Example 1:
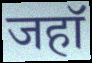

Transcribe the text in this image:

जहॉ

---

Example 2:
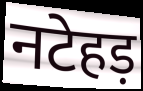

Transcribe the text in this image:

नटेहड़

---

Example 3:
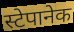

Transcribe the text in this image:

स्टेपानेक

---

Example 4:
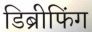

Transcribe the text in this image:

डिब्रीफिंग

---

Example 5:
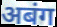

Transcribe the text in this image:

अबंग